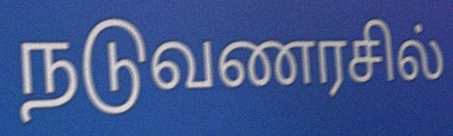
நடுவணரசில்